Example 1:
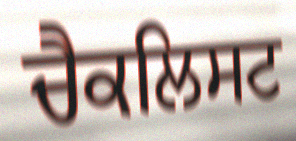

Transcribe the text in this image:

ਚੈਕਲਿਸਟ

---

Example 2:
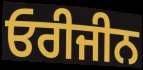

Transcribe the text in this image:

ਓਰੀਜੀਨ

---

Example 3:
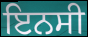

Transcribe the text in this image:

ਇਨਸੀ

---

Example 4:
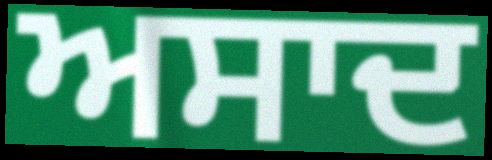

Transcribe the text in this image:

ਅਸਾਦ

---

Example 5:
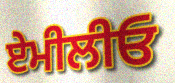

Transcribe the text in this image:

ਏਮੀਲੀਓ